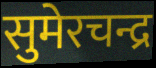
सुमेरचन्द्र